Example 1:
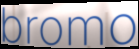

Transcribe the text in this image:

bromo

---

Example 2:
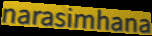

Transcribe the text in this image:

narasimhana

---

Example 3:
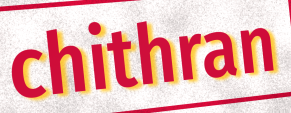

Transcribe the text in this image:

chithran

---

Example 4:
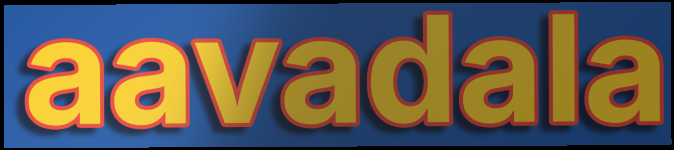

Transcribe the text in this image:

aavadala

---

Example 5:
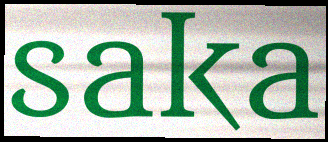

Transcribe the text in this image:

saka